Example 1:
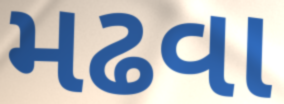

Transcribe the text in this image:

મઢવા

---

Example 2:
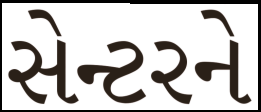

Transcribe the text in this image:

સેન્ટરને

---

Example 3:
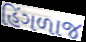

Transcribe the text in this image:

હિંગળાજ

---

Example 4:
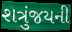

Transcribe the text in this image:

શત્રુંજયની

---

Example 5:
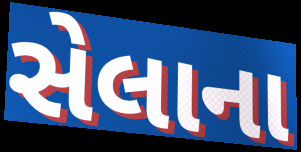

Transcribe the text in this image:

સેલાના